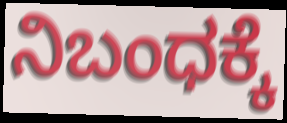
ನಿಬಂಧಕ್ಕೆ